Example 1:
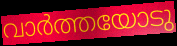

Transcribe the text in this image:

വാർത്തയോടു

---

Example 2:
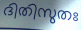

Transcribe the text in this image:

ദിതിസുതഃ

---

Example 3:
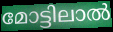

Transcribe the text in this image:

മോട്ടിലാൽ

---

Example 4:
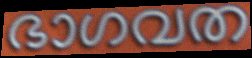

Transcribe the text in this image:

ഭാഗവത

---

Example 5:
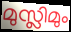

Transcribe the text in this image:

മുസ്ലിമും